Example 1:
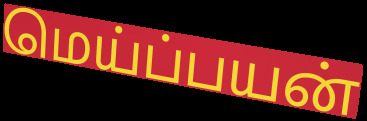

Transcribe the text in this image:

மெய்ப்பயன்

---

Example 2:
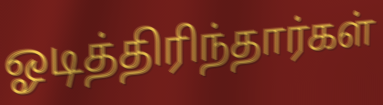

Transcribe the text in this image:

ஓடித்திரிந்தார்கள்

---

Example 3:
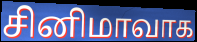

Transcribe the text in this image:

சினிமாவாக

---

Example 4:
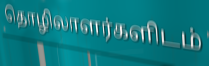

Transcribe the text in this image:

தொழிலாளர்களிடம்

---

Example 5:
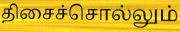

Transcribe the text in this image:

திசைச்சொல்லும்